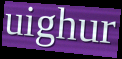
uighur